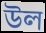
উল